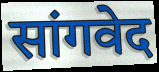
सांगवेद